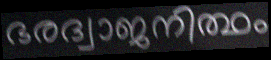
ഭരദ്വാജനിത്ഥം